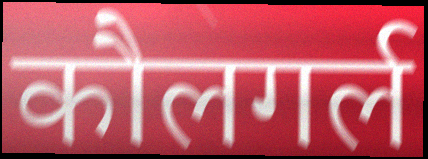
कौलगर्ल